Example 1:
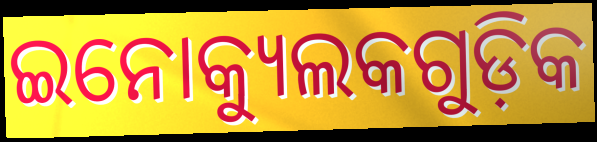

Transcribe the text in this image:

ଇନୋକ୍ଯୁଲକଗୁଡ଼ିକ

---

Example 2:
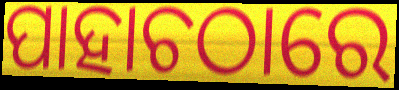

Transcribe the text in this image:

ପାହାଚଠାରେ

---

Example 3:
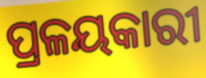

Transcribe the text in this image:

ପ୍ରଳୟକାରୀ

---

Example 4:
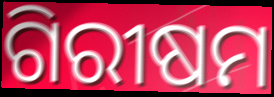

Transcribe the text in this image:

ଗିରୀଷମ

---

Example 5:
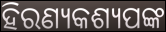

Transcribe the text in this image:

ହିରଣ୍ୟକଶ୍ୟପଙ୍କ